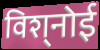
विश्नोई